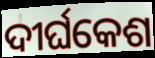
ଦୀର୍ଘକେଶ